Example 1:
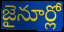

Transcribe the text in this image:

జైనూర్లో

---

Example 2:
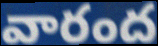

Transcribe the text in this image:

వారంద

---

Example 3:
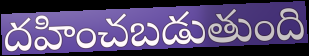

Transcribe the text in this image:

దహించబడుతుంది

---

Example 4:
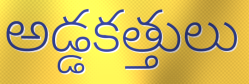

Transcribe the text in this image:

అడ్డకత్తులు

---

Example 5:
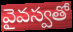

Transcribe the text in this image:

వైవస్వతో